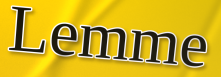
Lemme